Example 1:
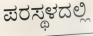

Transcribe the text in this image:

ಪರಸ್ಥಳದಲ್ಲಿ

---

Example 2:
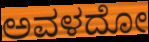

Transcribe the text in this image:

ಅವಳದೋ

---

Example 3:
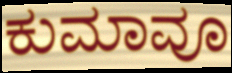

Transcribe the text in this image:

ಕುಮಾವೂ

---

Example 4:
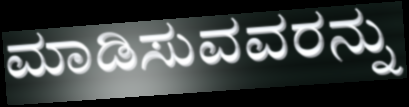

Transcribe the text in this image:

ಮಾಡಿಸುವವರನ್ನು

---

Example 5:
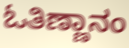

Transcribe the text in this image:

ಓತಿಣ್ಣಾನಂ